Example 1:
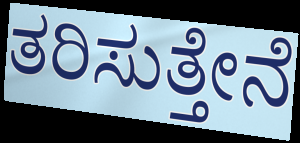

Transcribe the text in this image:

ತರಿಸುತ್ತೇನೆ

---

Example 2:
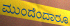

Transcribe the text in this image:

ಮುಂದೆಂದಾರೂ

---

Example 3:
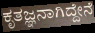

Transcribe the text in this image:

ಕೃತಜ್ಞನಾಗಿದ್ದೇನೆ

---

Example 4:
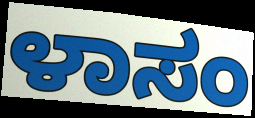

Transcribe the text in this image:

ಳಾಸಂ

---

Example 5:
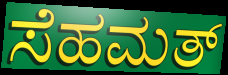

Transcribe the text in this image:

ಸೆಹಮತ್